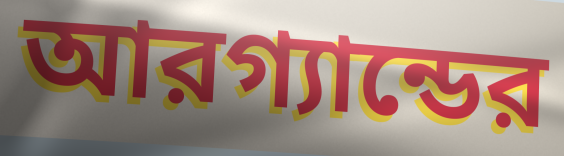
আরগ্যান্ডের